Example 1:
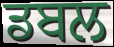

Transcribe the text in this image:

ਡਬਲ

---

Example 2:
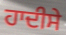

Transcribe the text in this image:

ਹਾਦੀਸੇ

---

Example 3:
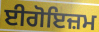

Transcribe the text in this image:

ਈਗੋਇਜ਼ਮ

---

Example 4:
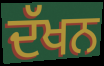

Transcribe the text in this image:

ਦੱਖਨ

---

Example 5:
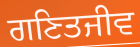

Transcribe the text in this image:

ਗਣਿਤਜੀਵ